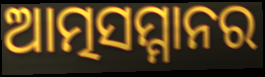
ଆତ୍ମସମ୍ମାନର